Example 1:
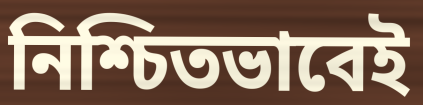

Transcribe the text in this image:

নিশ্চিতভাবেই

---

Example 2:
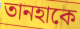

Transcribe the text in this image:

তানহাকে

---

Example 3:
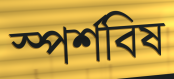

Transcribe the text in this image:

স্পর্শবিষ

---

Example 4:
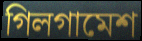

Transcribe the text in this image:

গিলগামেশ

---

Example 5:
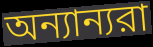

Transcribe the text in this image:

অন্যান্যরা